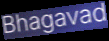
Bhagavad